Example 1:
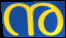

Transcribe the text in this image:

നു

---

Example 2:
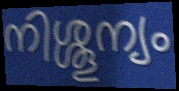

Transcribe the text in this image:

നിശ്ശൂന്യം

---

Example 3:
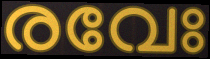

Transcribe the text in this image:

രവേഃ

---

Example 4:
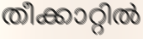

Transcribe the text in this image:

തീക്കാറ്റിൽ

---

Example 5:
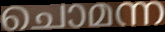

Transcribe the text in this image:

ചൊമന്ന